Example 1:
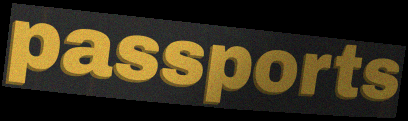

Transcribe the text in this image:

passports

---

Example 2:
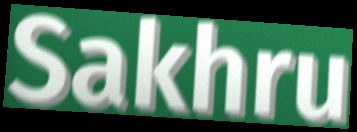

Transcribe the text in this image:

Sakhru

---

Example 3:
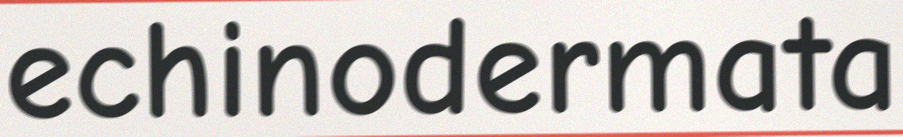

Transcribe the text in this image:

echinodermata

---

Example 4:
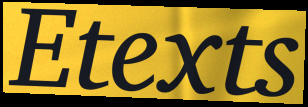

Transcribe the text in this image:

Etexts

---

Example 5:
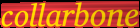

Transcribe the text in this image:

collarbone